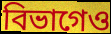
বিভাগেও